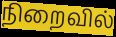
நிறைவில்